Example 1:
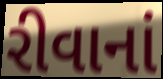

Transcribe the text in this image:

રીવાનાં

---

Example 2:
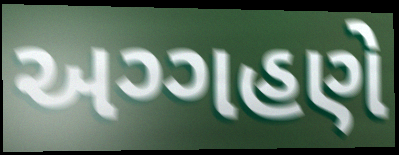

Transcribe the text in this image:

અગ્ગહણે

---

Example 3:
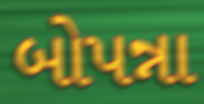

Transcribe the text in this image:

બોપન્ના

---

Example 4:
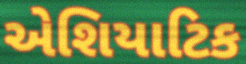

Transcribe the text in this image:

એશિયાટિક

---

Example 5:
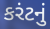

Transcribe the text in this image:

કરંટનું